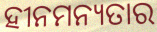
ହୀନମନ୍ୟତାର